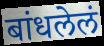
बांधलेलं